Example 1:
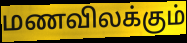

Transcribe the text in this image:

மணவிலக்கும்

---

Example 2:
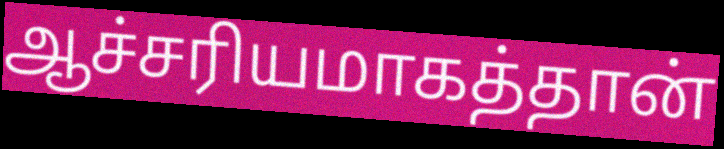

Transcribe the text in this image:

ஆச்சரியமாகத்தான்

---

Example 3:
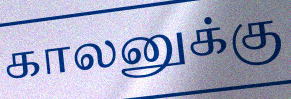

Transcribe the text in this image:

காலனுக்கு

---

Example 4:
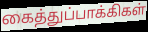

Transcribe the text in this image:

கைத்துப்பாக்கிகள்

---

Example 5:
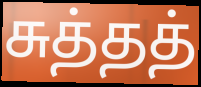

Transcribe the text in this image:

சுத்தத்